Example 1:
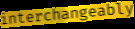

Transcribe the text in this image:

interchangeably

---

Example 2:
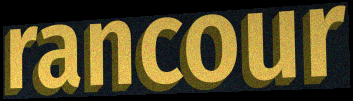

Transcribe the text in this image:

rancour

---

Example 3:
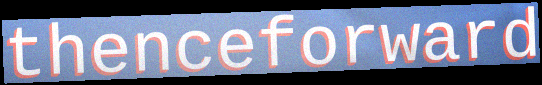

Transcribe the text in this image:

thenceforward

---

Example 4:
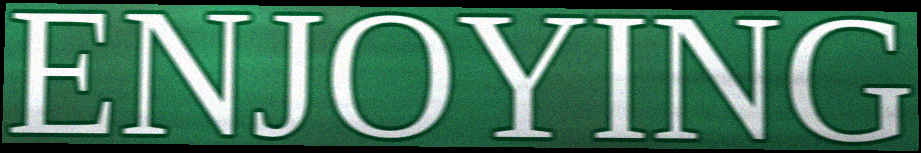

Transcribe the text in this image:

ENJOYING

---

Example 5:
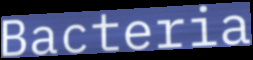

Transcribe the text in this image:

Bacteria